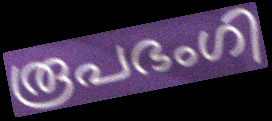
രൂപഭംഗി